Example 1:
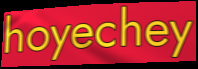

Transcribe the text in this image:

hoyechey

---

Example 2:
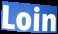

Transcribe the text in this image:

Loin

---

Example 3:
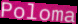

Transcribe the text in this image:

Poloma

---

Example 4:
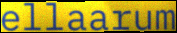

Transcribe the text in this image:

ellaarum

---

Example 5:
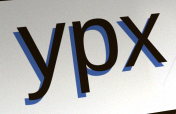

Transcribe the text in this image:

ypx